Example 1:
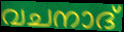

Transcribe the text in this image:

വചനാദ്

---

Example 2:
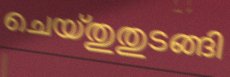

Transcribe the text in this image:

ചെയ്തുതുടങ്ങി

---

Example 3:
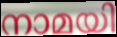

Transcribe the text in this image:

നാമയി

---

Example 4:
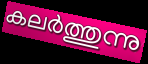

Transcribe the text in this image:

കലർത്തുന്നു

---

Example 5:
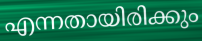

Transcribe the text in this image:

എന്നതായിരിക്കും